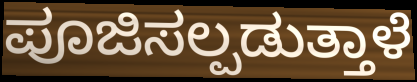
ಪೂಜಿಸಲ್ಪಡುತ್ತಾಳೆ